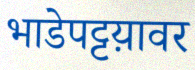
भाडेपट्टय़ावर